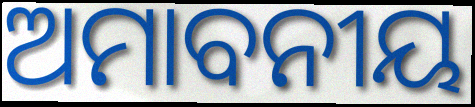
ଅମାବନୀୟ